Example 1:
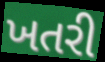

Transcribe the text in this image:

ખતરી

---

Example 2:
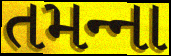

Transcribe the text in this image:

તમન્‍ના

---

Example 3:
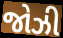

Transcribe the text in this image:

જોઝી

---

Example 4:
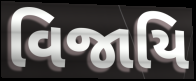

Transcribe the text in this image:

વિજાયિ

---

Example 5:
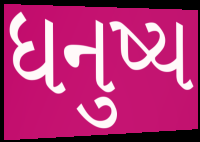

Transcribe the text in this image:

ધનુષ્ય